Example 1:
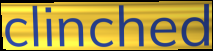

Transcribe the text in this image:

clinched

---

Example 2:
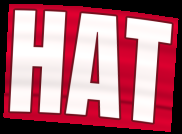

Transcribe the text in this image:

HAT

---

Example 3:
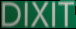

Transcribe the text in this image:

DIXIT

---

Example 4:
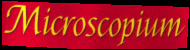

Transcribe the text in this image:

Microscopium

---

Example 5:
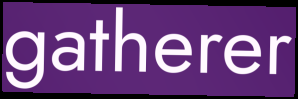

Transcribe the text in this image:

gatherer